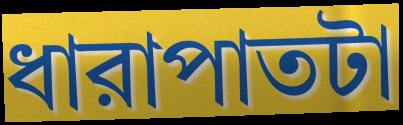
ধারাপাতটা